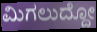
ಮಿಗಲುದ್ದೋ